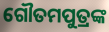
ଗୌତମପୁତ୍ରଙ୍କ